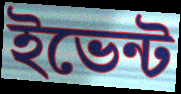
ইভেন্ট